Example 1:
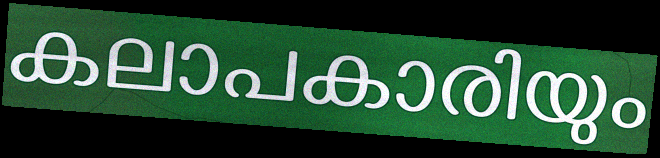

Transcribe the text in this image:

കലാപകാരിയും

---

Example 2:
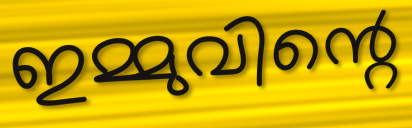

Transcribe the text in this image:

ഇമ്മുവിന്റെ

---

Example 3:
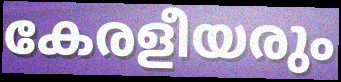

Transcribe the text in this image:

കേരളീയരും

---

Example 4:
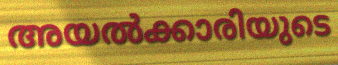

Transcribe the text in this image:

അയൽക്കാരിയുടെ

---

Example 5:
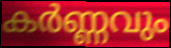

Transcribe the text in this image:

കർണ്ണവും